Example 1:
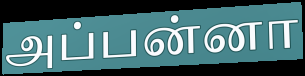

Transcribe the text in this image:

அப்பன்னா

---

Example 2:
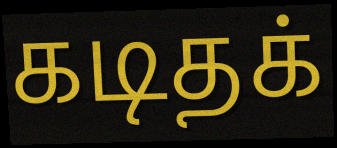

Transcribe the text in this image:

கடிதக்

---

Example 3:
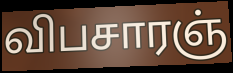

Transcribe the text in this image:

விபசாரஞ்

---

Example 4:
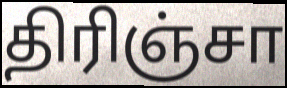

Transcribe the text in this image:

திரிஞ்சா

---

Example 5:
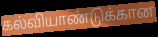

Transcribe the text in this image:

கல்வியாண்டுக்கான